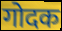
गोदक